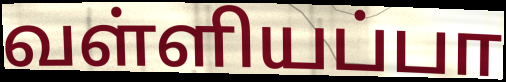
வள்ளியப்பா